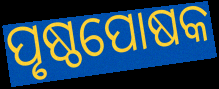
ପୃଷ୍ଠପୋଷକ